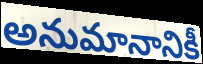
అనుమానానికీ